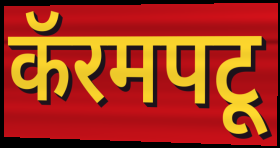
कॅरमपटू